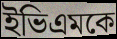
ইভিএমকে